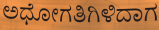
ಅಧೋಗತಿಗಿಳಿದಾಗ